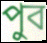
পুব